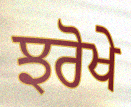
ਝਰੋਖੇ